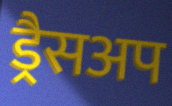
ड्रैसअप